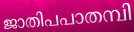
ജാതിപപാതമ്പി